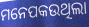
ମନେପକଉଥିଲା